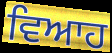
ਵਿਆਹ